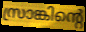
സ്രാങ്കിന്റെ